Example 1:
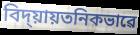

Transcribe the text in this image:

বিদ্য়ায়তনিকভাৱে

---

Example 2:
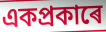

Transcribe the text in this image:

একপ্ৰকাৰে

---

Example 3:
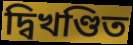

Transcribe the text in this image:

দ্বিখণ্ডিত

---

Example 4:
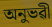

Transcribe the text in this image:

অনুভৱী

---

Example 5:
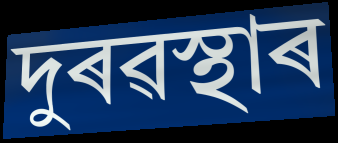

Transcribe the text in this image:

দুৰৱস্থাৰ